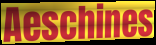
Aeschines